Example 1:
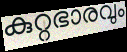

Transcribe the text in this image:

കുറ്റഭാരവും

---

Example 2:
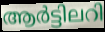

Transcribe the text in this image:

ആർട്ടിലറി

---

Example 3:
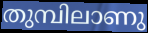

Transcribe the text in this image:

തുമ്പിലാണു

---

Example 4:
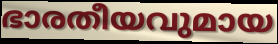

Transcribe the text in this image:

ഭാരതീയവുമായ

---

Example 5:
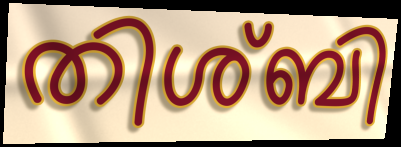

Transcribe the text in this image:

തിശ്ബി